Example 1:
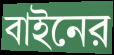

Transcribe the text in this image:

বাইনের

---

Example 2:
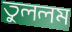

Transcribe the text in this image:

তুললম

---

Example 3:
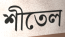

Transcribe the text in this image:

শীতেল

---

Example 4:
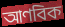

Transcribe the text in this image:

আণবিক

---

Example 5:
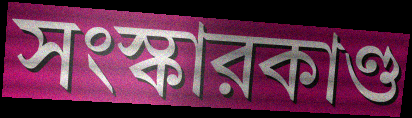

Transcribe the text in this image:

সংস্কারকাণ্ড